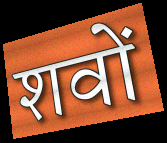
शवों